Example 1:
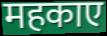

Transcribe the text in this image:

महकाए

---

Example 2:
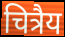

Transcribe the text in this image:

चित्रैय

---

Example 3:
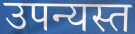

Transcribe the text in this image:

उपन्यस्त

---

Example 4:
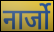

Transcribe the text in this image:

नार्जो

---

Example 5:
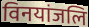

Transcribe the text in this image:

विनयांजलि